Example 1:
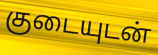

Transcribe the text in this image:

குடையுடன்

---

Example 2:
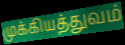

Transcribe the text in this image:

முக்கியத்துவம்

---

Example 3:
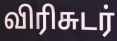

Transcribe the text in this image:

விரிசுடர்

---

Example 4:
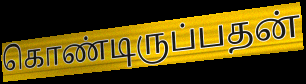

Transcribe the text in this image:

கொண்டிருப்பதன்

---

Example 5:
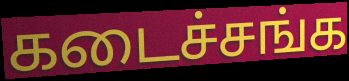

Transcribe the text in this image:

கடைச்சங்க